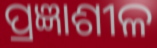
ପ୍ରଜ୍ଞାଶୀଳ